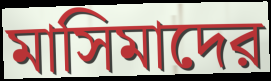
মাসিমাদের